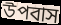
উপবাস